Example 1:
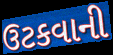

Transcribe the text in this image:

ઉટકવાની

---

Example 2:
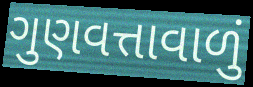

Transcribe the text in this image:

ગુણવત્તાવાળું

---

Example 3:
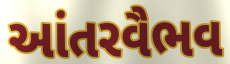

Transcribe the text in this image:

આંતરવૈભવ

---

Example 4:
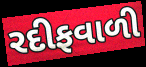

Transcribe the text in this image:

રદીફવાળી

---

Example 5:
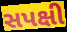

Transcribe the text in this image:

સપક્ષી